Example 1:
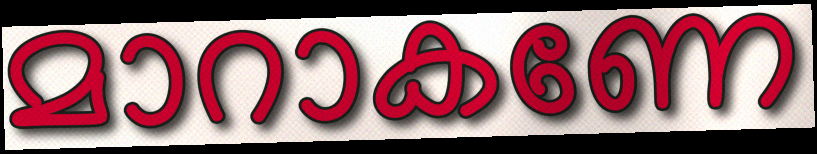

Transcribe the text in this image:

മാറാകണേ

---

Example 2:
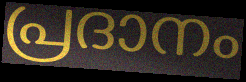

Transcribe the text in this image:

പ്രദാനം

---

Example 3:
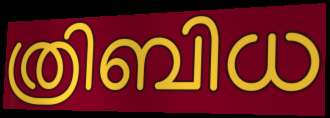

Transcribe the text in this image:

ത്രിബിധ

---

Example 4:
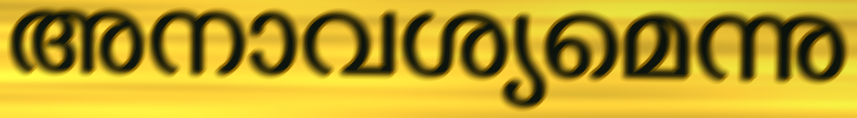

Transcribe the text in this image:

അനാവശ്യമെന്നു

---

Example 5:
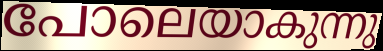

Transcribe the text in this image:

പോലെയാകുന്നു